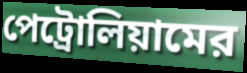
পেট্রোলিয়ামের